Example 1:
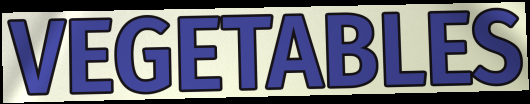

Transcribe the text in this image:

VEGETABLES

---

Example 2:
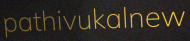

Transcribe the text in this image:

pathivukalnew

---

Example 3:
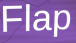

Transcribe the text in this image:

Flap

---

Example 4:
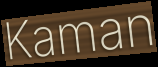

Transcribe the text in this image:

Kaman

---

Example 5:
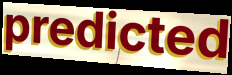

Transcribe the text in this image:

predicted